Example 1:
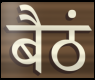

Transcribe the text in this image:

बैठं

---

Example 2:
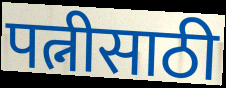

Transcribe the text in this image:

पत्नीसाठी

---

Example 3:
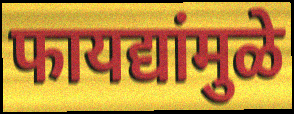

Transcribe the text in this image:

फायद्यांमुळे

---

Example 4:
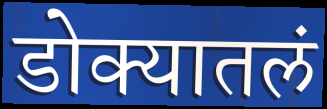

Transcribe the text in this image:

डोक्यातलं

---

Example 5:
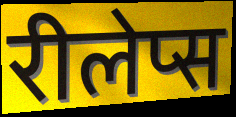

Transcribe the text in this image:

रीलेप्स